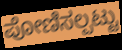
ಪೋಣಿಸಲ್ಪಟ್ಟು